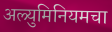
अल्युमिनियमचा